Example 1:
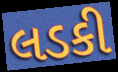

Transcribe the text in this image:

લડકી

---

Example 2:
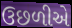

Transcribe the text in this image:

ઉછળીએ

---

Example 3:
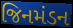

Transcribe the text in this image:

જિનમંડન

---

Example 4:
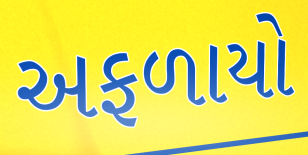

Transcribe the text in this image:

અફળાયો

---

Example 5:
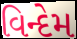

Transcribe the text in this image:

વિન્દેમ